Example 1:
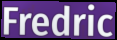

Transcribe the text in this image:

Fredric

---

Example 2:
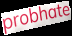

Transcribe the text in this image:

probhate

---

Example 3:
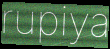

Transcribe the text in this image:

rupiya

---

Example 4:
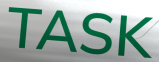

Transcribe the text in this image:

TASK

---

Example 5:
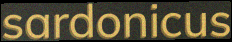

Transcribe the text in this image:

sardonicus